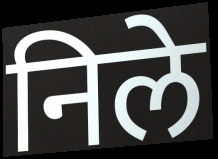
निले